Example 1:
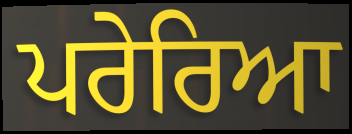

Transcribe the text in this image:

ਪਰੇਰਿਆ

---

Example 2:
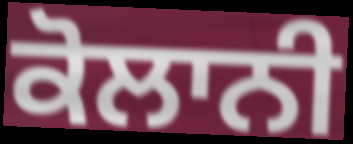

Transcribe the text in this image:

ਕੋਲਾਨੀ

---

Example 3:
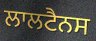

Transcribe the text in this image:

ਲਾਲਟੈਨਸ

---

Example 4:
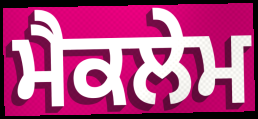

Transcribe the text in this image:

ਮੈਕਲੇਮ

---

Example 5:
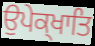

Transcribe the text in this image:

ਉਪੇਕ੍ਖਾਤਿ